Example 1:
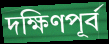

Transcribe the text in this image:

দক্ষিণপূর্ব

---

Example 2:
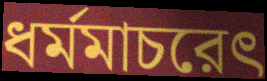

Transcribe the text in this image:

ধর্মমাচরেৎ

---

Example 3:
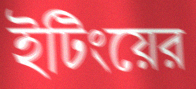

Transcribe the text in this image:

ইটিংয়ের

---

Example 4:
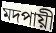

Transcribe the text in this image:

মদপায়ী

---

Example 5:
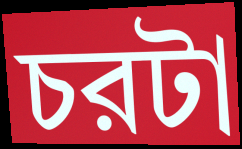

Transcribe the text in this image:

চরটা